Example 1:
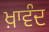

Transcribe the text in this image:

ਖ਼ਾਵੰਦ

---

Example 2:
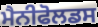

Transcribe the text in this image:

ਮੈਨੀਫੋਲਡਸ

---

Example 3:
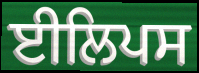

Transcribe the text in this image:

ਈਲਿਪਸ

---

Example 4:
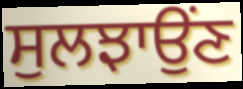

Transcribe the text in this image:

ਸੁਲਝਾਉਂਣ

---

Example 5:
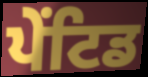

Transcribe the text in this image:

ਪੇਂਟਿਡ